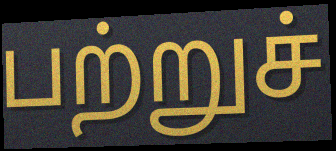
பற்றுச்